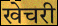
खेचरी